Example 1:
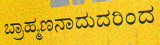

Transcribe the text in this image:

ಬ್ರಾಹ್ಮಣನಾದುದರಿಂದ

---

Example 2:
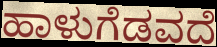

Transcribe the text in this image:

ಹಾಳುಗೆಡವದೆ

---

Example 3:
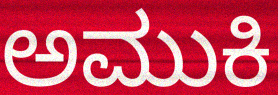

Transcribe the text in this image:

ಅಮುಕಿ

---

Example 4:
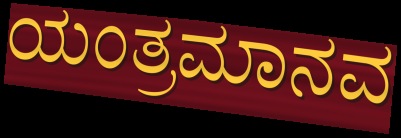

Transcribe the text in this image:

ಯಂತ್ರಮಾನವ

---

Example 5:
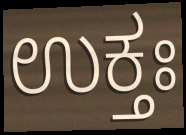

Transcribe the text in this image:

ಉಕ್ತಃ